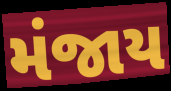
મંજાય